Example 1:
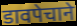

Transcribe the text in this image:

डावपेचाने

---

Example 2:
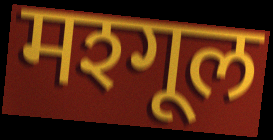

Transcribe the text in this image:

मश्गूल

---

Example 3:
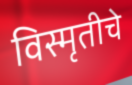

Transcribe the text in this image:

विस्मृतीचे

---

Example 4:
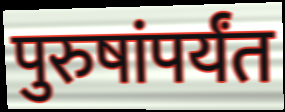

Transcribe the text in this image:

पुरुषांपर्यंत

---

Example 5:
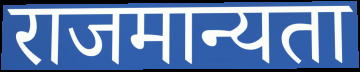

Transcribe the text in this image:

राजमान्यता